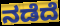
ನಡೆದೆ